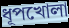
ধূপখোলা